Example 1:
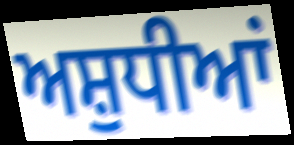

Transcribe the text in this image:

ਅਸ਼ੁਧੀਆਂ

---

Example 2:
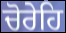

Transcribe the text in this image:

ਚੋਰੇਹਿ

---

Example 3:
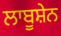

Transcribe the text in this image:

ਲਾਬੂਸ਼ੇਨ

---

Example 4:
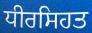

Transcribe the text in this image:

ਧੀਰਸਿਹਤ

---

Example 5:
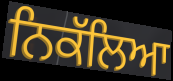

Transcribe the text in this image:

ਨਿਕੱਲਿਆ